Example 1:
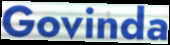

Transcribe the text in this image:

Govinda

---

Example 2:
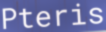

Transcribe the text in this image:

Pteris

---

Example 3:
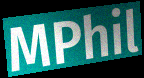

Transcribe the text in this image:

MPhil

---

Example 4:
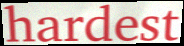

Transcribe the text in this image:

hardest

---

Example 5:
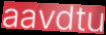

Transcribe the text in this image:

aavdtu